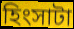
হিংসাটা